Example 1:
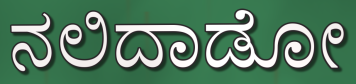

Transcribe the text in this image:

ನಲಿದಾಡೋ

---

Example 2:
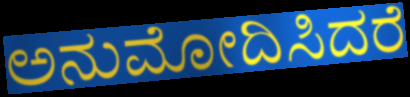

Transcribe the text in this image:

ಅನುಮೋದಿಸಿದರೆ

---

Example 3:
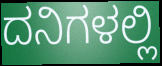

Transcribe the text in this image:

ದನಿಗಳಲ್ಲಿ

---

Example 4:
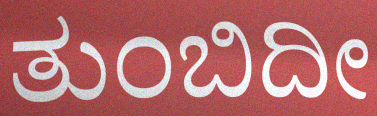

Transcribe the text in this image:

ತುಂಬಿದೀ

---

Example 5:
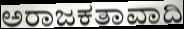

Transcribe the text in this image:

ಅರಾಜಕತಾವಾದಿ